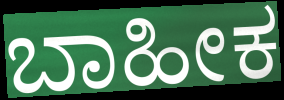
ಬಾಹೀಕ